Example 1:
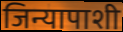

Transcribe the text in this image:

जिन्यापाशी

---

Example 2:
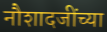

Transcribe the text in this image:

नौशादजींच्या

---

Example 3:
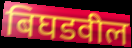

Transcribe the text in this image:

बिघडवील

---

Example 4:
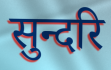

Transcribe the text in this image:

सुन्दरि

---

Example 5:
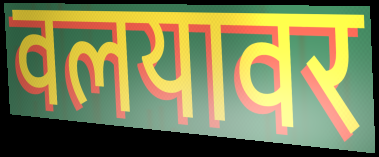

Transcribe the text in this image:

वलयावर